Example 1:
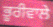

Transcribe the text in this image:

ਭੂਰੀਵਾਲੇ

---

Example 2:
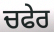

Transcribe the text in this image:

ਚਫੇਰ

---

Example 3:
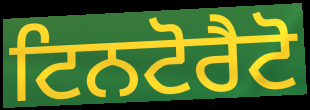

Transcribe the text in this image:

ਟਿਨਟੋਰੈਟੋ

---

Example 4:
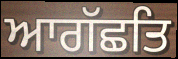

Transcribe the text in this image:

ਆਗੱਛਤਿ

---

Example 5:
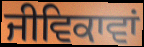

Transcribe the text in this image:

ਜੀਵਿਕਾਵਾਂ